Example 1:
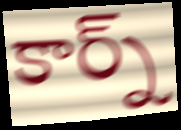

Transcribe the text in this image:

కార్న్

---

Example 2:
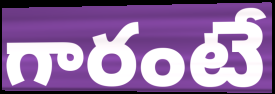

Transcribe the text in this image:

గారంటే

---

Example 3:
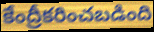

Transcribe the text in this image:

కేంద్రీకరించబడింది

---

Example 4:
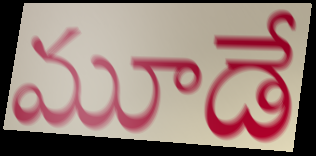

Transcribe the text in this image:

మూడే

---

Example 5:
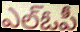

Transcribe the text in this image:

ఎల్ఓపీ